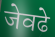
जेवढे